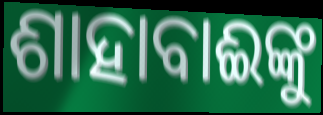
ଶାହାବାଈଙ୍କୁ